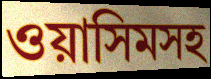
ওয়াসিমসহ